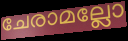
ചേരാമല്ലോ